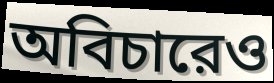
অবিচারেও